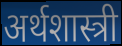
अर्थशास्त्री